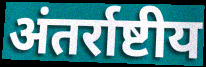
अंतर्राष्टीय